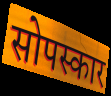
सोपस्कार